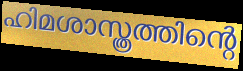
ഹിമശാസ്ത്രത്തിന്റെ